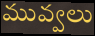
మువ్వలు